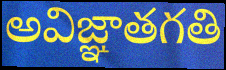
అవిజ్ఞాతగతి